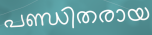
പണ്ഡിതരായ